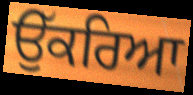
ਉੱਕਰਿਆ